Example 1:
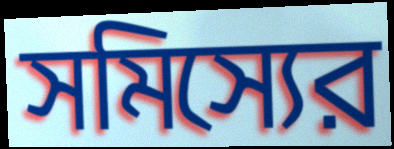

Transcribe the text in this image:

সমিস্যের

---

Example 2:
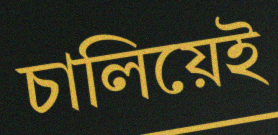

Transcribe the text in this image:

চালিয়েই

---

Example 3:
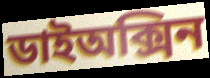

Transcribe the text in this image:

ডাইঅক্সিন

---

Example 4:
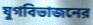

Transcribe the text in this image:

যুগবিভাজনের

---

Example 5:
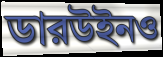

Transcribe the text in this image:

ডারউইনও